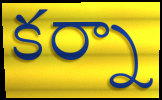
కర్నా